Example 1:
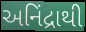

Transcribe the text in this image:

અનિંદ્રાથી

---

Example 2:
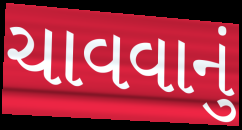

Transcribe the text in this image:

ચાવવાનું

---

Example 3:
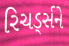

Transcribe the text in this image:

રિચર્ડ્સને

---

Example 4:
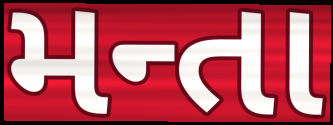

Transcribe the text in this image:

મન્તા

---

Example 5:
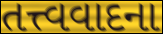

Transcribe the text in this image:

તત્ત્વવાદના